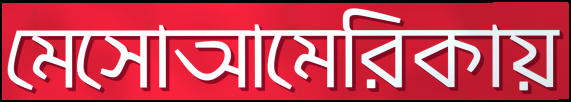
মেসোআমেরিকায়